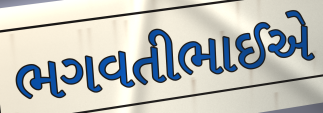
ભગવતીભાઈએ